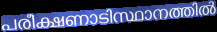
പരീക്ഷണാടിസ്ഥാനത്തിൽ